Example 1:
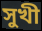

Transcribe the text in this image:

সুখী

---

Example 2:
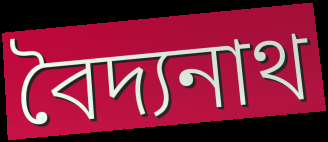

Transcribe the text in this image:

বৈদ্যনাথ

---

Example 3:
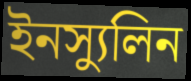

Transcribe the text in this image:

ইনস্যুলিন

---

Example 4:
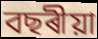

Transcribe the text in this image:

বছৰীয়া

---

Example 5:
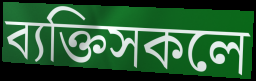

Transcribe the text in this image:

ব্যক্তিসকলে